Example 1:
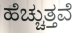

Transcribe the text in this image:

ಹೆಚ್ಚುತ್ತವೆ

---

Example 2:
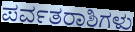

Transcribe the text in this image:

ಪರ್ವತರಾಶಿಗಳು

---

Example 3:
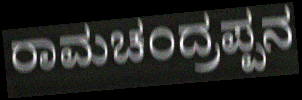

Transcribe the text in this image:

ರಾಮಚಂದ್ರಪ್ಪನ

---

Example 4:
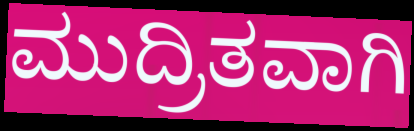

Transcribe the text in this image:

ಮುದ್ರಿತವಾಗಿ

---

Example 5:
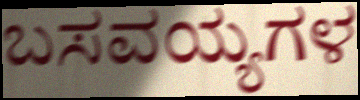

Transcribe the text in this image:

ಬಸವಯ್ಯಗಳ